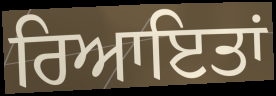
ਰਿਆਇਤਾਂ